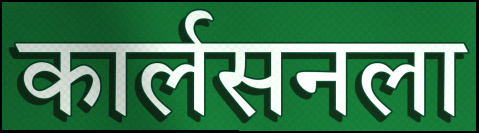
कार्लसनला